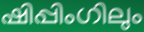
ഷിപ്പിംഗിലും